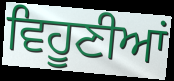
ਵਿਹੂਣੀਆਂ